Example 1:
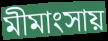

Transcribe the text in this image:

মীমাংসায়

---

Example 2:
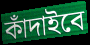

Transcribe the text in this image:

কাঁদাইবে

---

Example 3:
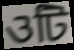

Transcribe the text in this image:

ওটি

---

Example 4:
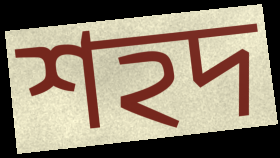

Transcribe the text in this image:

শহদ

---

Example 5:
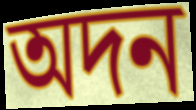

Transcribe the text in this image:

অদন